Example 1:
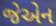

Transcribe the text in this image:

જેએન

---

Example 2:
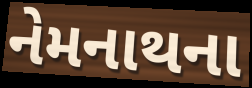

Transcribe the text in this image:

નેમનાથના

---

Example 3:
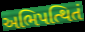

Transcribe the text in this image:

અભિપત્થિતં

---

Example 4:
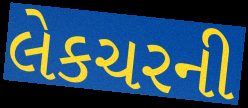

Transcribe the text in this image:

લેકચરની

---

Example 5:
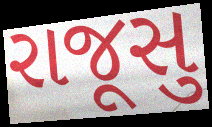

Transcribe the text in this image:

રાજૂસુ